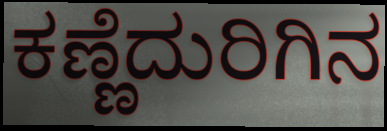
ಕಣ್ಣೆದುರಿಗಿನ